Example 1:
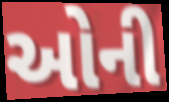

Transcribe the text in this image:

ઓની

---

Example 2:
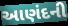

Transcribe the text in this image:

આણંદની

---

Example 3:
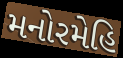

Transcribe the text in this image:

મનોરમેહિ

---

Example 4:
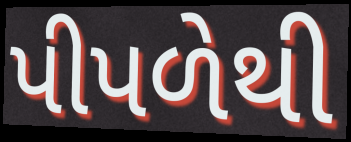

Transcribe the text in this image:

પીપળેથી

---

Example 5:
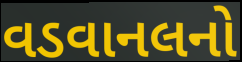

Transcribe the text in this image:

વડવાનલનો